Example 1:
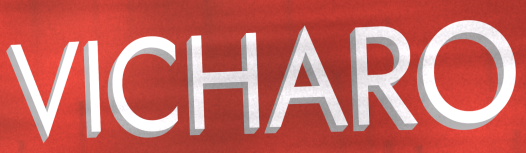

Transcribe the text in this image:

VICHARO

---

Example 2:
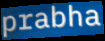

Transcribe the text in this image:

prabha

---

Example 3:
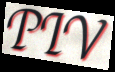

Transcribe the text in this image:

PIV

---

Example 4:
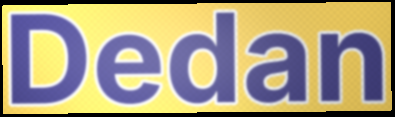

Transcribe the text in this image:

Dedan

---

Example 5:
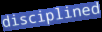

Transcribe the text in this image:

disciplined